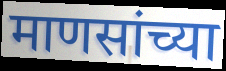
माणसांच्या